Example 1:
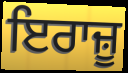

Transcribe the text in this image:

ਇਰਾਜ਼ੂ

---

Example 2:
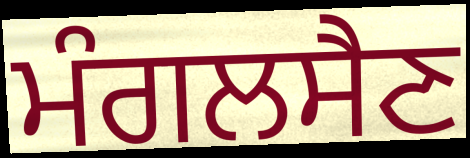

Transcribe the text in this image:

ਮੰਗਲਸੈਣ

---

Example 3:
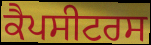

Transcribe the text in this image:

ਕੈਪਸੀਟਰਸ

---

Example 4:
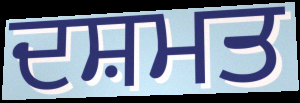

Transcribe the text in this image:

ਦਸ਼ਮਤ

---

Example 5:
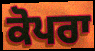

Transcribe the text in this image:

ਕੋਪਰਾ